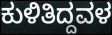
ಕುಳಿತಿದ್ದವಳ